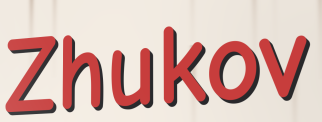
Zhukov